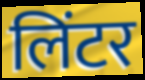
लिंटर